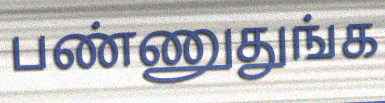
பண்ணுதுங்க